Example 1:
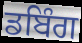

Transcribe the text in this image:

ਡਬਿੰਗ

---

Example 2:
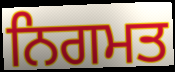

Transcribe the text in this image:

ਨਿਗਮਤ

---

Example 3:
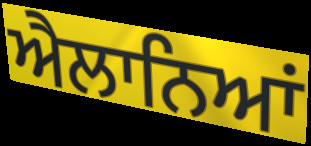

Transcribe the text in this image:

ਐਲਾਨਿਆਂ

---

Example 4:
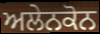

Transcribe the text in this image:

ਅਲੇਨਕੋਨ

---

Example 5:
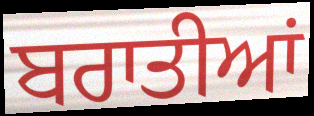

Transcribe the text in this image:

ਬਰਾਤੀਆਂ